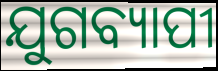
ଯୁଗବ୍ୟାପୀ